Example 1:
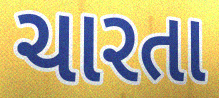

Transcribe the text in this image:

ચારતા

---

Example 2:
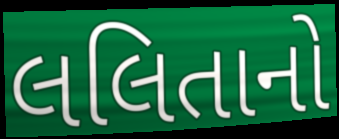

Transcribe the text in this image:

લલિતાનો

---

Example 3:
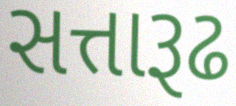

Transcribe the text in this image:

સત્તારૂઢ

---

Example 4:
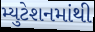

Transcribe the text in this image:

મ્યુટેશનમાંથી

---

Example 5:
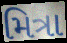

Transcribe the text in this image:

મિત્રા